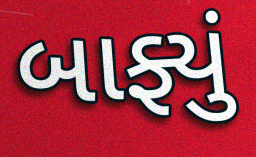
બાફ્યું